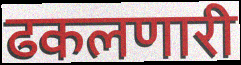
ढकलणारी